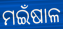
ମଇଁଷାଳ